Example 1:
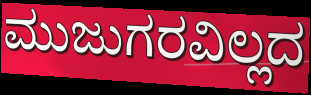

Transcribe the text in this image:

ಮುಜುಗರವಿಲ್ಲದ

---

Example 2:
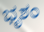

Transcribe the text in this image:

ಭೃಶಂ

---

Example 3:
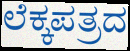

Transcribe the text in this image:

ಲೆಕ್ಕಪತ್ರದ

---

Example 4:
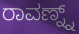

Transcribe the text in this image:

ರಾವಣ್ನ್ನ್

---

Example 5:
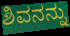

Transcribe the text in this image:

ಶಿವನನ್ನು